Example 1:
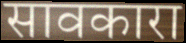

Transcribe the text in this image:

सावकारा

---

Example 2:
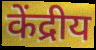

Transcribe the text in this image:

केंद्रीय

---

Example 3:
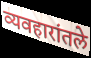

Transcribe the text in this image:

व्यवहारांतले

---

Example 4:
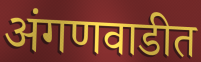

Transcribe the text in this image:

अंगणवाडीत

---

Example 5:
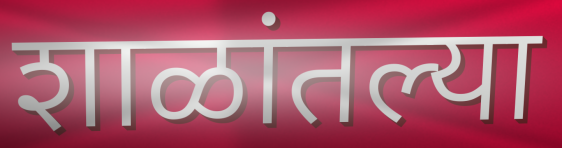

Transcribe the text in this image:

शाळांतल्या